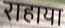
राहाया